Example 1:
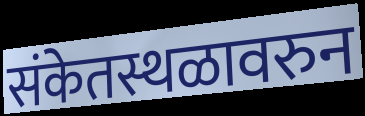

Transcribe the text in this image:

संकेतस्थळावरुन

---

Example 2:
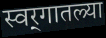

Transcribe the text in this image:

स्वर्गातल्या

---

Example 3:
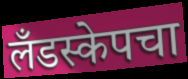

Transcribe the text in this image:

लँडस्केपचा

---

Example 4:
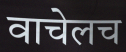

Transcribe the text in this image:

वाचेलच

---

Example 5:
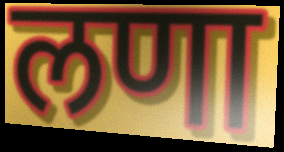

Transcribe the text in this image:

लणा